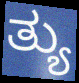
ತ್ಯು